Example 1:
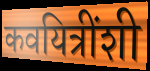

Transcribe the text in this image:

कवयित्रींशी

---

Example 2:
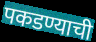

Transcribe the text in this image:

पकडण्याची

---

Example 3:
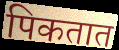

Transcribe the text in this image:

पिकतात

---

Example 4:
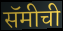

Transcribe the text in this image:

सॅमीची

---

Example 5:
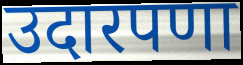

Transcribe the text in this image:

उदारपणा